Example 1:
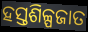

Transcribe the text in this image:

ହସ୍ତଶିଳ୍ପଜାତ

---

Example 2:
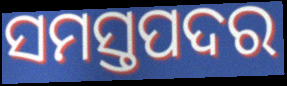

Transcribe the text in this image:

ସମସ୍ତପଦର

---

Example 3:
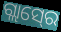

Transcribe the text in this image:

ଗ୍ଲାସ୍‍ରେ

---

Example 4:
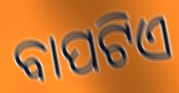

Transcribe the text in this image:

ବାପଟିଏ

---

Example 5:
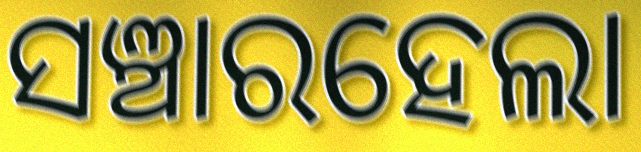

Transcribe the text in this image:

ସଞ୍ଚାରହେଲା